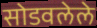
सोडवलेले